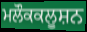
ਮਲੌਕਕਲੂਸ਼ਨ